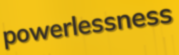
powerlessness